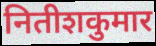
नितीशकुमार